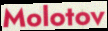
Molotov